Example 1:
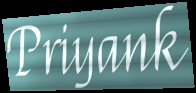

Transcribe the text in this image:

Priyank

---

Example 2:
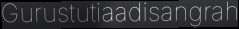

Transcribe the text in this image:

Gurustutiaadisangrah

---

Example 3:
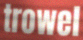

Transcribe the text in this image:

trowel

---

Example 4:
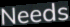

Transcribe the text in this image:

Needs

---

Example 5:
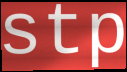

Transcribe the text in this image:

stp